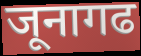
जूनागढ